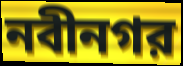
নবীনগর